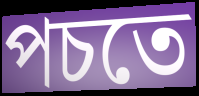
পচতে